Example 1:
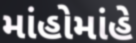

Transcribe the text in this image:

માંહોમાંહે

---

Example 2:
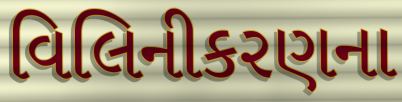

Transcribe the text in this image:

વિલિનીકરણના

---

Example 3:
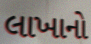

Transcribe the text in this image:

લાખાનો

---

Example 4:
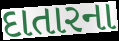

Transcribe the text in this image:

દાતારના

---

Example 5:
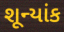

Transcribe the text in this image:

શૂન્યાંક